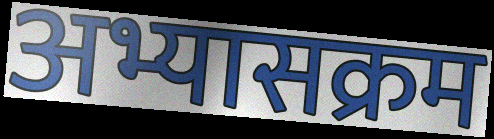
अभ्यासक्रम